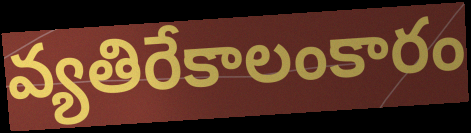
వ్యతిరేకాలంకారం